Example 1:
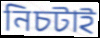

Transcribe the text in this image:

নিচটাই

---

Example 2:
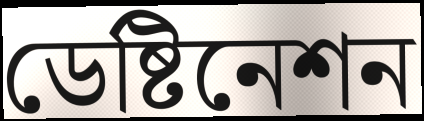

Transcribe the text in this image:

ডেষ্টিনেশন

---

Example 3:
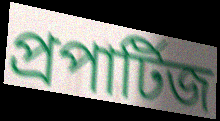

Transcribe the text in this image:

প্রপার্টিজ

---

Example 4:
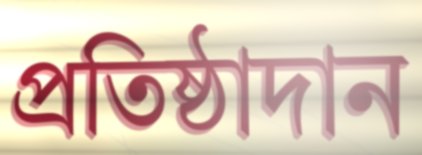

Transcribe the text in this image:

প্রতিষ্ঠাদান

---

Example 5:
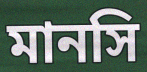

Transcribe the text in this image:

মানসি